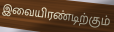
இவையிரண்டிற்கும்